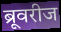
ब्रूवरीज